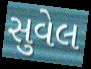
સુવેલ